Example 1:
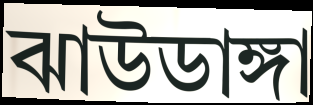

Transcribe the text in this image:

ঝাউডাঙ্গা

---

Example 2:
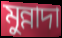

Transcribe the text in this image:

মুন্নাদা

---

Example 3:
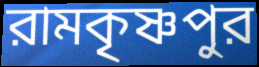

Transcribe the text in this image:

রামকৃষ্ণপুর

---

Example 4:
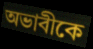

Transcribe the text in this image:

অভাবীকে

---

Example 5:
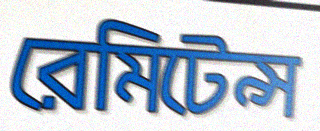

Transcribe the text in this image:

রেমিটেন্স